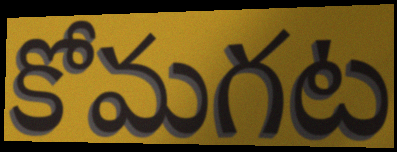
కోమగట